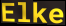
Elke